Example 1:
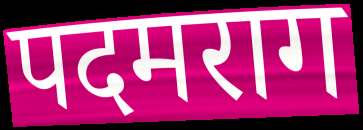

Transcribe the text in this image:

पदमराग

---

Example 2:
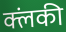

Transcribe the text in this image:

क्लंकी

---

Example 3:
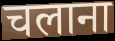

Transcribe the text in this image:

चलाना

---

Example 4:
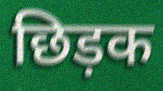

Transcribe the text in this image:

छिड़क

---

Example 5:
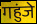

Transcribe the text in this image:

गहुंजे